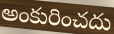
అంకురించదు